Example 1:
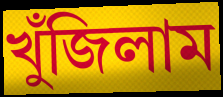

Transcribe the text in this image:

খুঁজিলাম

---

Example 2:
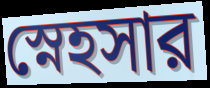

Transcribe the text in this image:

স্নেহসার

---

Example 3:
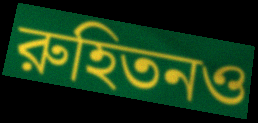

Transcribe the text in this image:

রুহিতনও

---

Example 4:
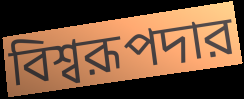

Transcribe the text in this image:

বিশ্বরূপদার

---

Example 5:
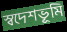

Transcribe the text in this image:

স্বদেশভূমি